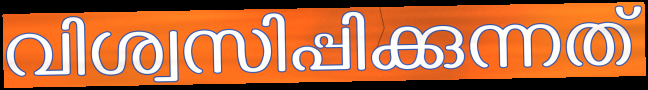
വിശ്വസിപ്പിക്കുന്നത്